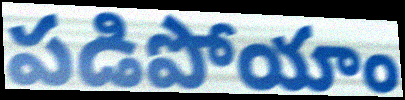
పడిపోయాం